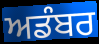
ਅਡੰਬਰ